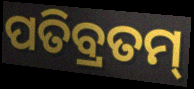
ପତିବ୍ରତମ୍